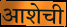
आशेची